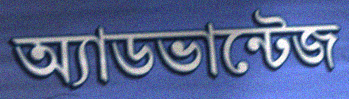
অ্যাডভান্টেজ